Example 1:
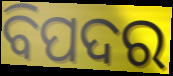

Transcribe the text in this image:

ବିପଦର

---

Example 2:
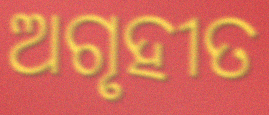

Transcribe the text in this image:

ଅଗୃହୀତ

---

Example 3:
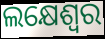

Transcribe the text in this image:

ଲକ୍ଷେଶ୍ଵର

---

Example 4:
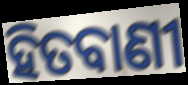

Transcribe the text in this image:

ହିତବାଣୀ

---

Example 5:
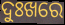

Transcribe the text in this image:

ଦୁଃଖରେ